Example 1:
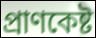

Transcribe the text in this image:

প্রাণকেষ্ট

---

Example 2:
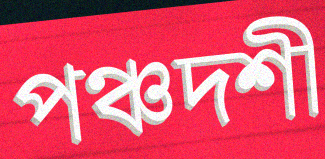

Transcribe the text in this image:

পঞ্চদশী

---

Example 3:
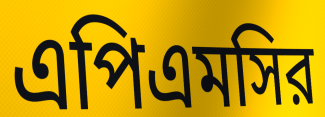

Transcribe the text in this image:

এপিএমসির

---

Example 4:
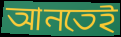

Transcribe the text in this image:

আনতেই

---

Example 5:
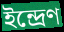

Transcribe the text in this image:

ইন্দ্রেণ